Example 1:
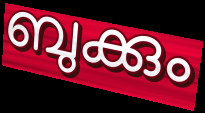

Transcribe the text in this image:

ബുക്കും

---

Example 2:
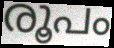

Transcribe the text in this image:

രൂപം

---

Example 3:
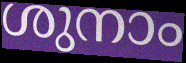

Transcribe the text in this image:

ശുനാം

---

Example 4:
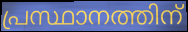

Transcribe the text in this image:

പ്രസ്ഥാനത്തിന്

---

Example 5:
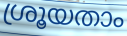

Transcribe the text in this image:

ശ്രൂയതാം